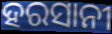
ହରସାନୀ